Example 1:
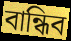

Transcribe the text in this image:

বান্ধিব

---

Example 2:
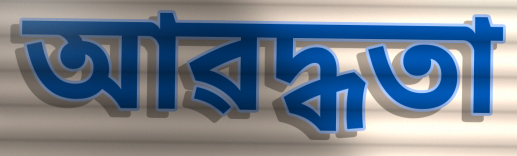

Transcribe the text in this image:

আৱদ্ধতা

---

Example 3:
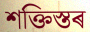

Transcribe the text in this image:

শক্তিস্তৰ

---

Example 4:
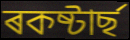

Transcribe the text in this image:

ৰকষ্টাৰ্ছ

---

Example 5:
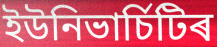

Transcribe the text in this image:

ইউনিভাৰ্চিটিৰ